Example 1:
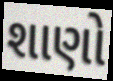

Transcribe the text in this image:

શાણો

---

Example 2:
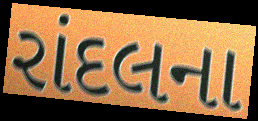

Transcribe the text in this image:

રાંદલના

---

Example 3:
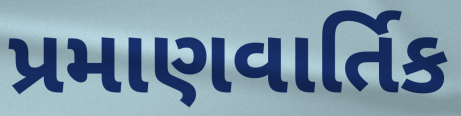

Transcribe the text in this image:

પ્રમાણવાર્તિક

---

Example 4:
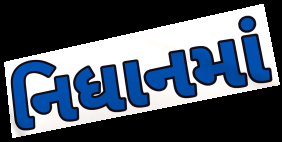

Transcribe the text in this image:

નિધાનમાં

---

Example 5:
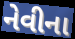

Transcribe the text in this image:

નેવીના